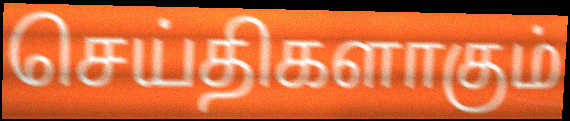
செய்திகளாகும்